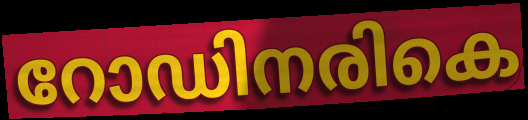
റോഡിനരികെ